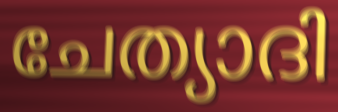
ചേത്യാദി